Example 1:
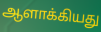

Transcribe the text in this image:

ஆளாக்கியது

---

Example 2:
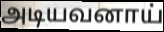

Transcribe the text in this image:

அடியவனாய்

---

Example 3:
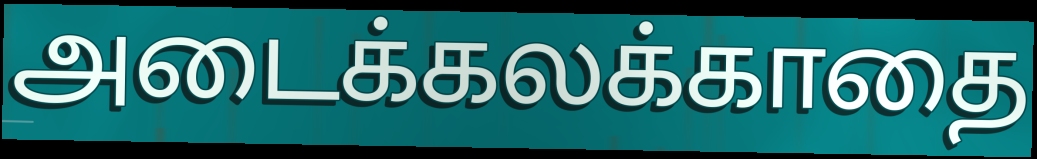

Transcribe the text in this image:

அடைக்கலக்காதை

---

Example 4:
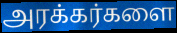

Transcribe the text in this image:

அரக்கர்களை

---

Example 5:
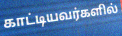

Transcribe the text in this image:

காட்டியவர்களில்